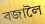
বজালৈ